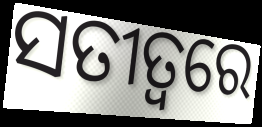
ସତୀତ୍ୱରେ